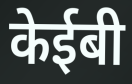
केईबी